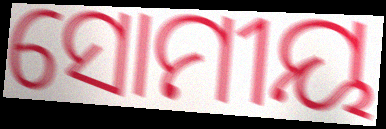
ସୋମୀୟ